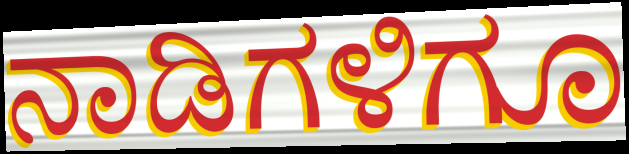
ನಾಡಿಗಳಿಗೂ